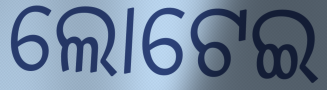
ଲୋଟେଇ